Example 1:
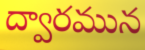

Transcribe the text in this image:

ద్వారమున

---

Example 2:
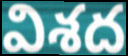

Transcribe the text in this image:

విశద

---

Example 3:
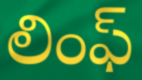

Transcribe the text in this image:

లింఫ్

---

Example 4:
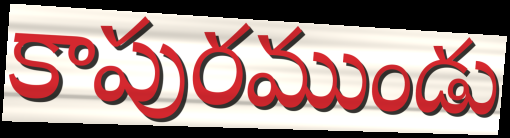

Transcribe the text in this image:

కాపురముండు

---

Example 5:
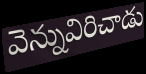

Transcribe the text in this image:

వెన్నువిరిచాడు